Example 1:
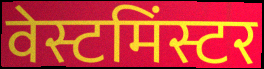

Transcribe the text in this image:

वेस्‍टमिंस्‍टर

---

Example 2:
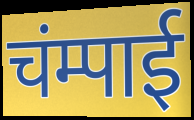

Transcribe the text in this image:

चंम्पाई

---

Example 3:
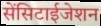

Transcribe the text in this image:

सेंसिटाईजेशन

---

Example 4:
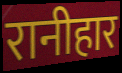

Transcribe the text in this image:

रानीहार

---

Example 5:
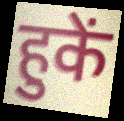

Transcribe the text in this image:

हुकें